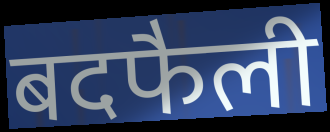
बदफैली